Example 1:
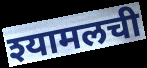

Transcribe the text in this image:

श्यामलची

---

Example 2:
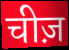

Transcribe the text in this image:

चीज़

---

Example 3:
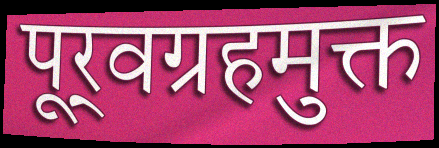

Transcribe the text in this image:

पूर्वग्रहमुक्त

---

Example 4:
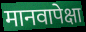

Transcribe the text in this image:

मानवापेक्षा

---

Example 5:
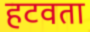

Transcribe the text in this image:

हटवता